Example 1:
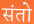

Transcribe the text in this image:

संतो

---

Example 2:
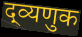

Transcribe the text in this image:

द्व्यणुक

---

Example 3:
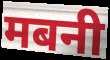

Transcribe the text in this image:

मबनी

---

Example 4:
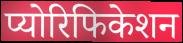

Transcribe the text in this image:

प्योरिफिकेशन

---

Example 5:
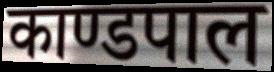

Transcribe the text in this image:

काण्डपाल